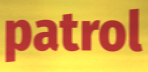
patrol